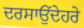
ਦਰਸਾਉਂਦੇਹਰੇ